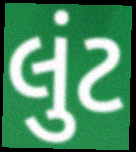
લુંટ